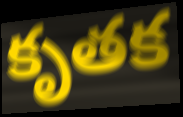
కృతక